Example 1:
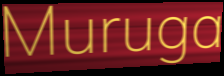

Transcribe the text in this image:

Muruga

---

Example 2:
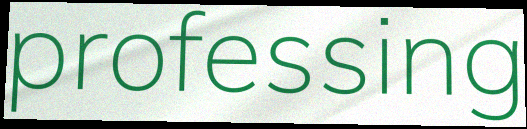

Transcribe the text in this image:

professing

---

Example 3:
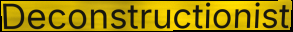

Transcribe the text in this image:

Deconstructionist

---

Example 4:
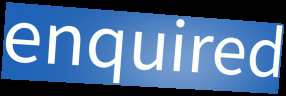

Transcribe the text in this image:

enquired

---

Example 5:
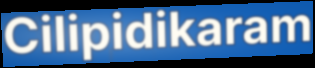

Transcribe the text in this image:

Cilipidikaram